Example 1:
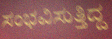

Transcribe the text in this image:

ಸಂಭವಿಸುತ್ತಿದ್ದ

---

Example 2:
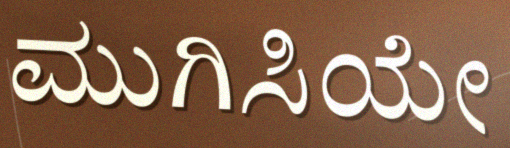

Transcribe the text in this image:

ಮುಗಿಸಿಯೇ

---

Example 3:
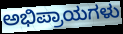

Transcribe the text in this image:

ಅಭಿಪ್ರಾಯಗಳು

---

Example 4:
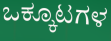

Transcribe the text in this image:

ಒಕ್ಕೂಟಗಳ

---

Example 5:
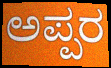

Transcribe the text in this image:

ಅಪ್ಪರ